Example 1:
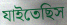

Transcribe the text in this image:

যাইতেছিস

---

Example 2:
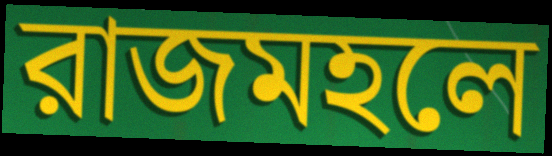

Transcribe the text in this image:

রাজমহলে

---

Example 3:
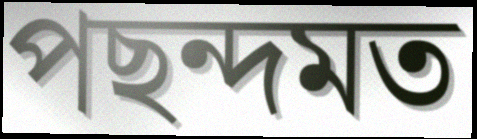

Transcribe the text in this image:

পছন্দমত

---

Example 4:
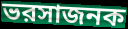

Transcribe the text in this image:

ভরসাজনক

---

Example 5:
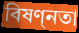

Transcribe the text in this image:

বিষণ্নতা